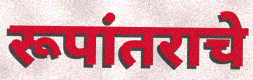
रूपांतराचे